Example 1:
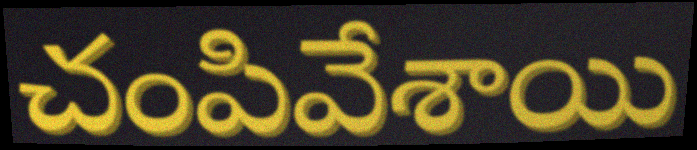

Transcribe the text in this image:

చంపివేశాయి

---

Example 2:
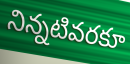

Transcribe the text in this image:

నిన్నటివరకూ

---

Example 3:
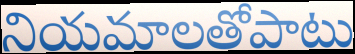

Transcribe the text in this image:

నియమాలతోపాటు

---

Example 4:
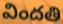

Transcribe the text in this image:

విందతి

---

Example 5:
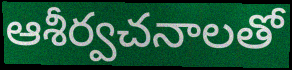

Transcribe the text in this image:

ఆశీర్వచనాలతో